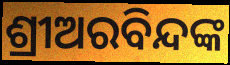
ଶ୍ରୀଅରବିନ୍ଦଙ୍କ